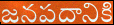
జనపదానికి